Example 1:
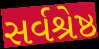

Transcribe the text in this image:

સર્વશ્રેષ્ઠ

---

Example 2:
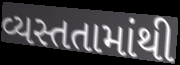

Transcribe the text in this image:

વ્યસ્તતામાંથી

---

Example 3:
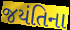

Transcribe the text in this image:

જયંતિના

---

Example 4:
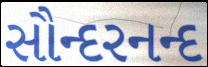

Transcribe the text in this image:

સૌન્દરનન્દ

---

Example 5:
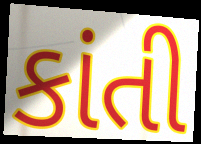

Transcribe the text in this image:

કાંતી